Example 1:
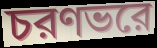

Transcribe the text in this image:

চরণভরে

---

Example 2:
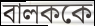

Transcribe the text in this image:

বালককে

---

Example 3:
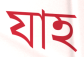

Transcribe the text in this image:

যাহ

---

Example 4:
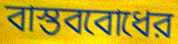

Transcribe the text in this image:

বাস্তববোধের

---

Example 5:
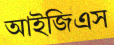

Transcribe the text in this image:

আইজিএস